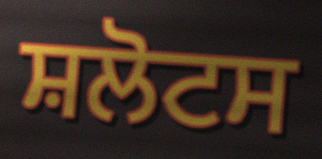
ਸ਼ਲੋਟਸ